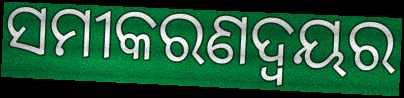
ସମୀକରଣଦ୍ଵୟର